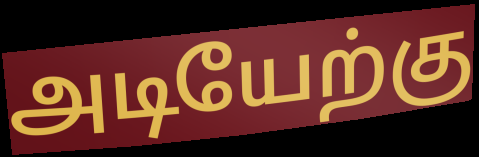
அடியேற்கு